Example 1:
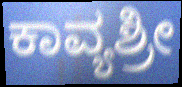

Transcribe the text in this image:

ಕಾವ್ಯಶ್ರೀ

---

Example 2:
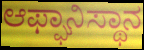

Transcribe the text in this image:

ಆಫ್ಘಾನಿಸ್ಥಾನ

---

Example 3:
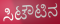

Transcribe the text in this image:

ಸಿಟೌಟಿನ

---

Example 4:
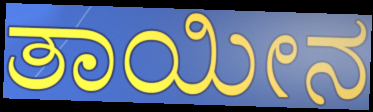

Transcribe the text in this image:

ತಾಯೀನ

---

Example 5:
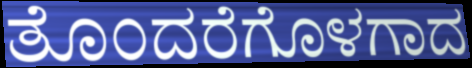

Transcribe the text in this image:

ತೊಂದರೆಗೊಳಗಾದ